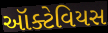
ઑક્ટેવિયસ